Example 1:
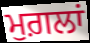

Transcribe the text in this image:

ਮੁਗ਼ਲਾਂ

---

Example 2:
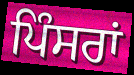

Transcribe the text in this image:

ਪਿੰਸਰਾਂ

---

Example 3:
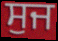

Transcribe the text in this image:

ਸੁਜ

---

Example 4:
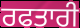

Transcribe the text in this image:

ਰਫਤਾਰੀ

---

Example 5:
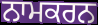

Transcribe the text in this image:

ਨਾਮਕਰਨ